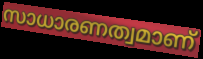
സാധാരണത്വമാണ്